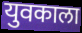
युवकाला